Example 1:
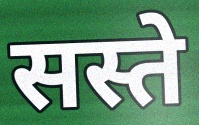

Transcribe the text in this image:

सस्ते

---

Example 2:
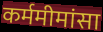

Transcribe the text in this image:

कर्ममीमांसा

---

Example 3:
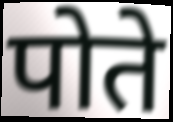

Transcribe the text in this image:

पोते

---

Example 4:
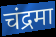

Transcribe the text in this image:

चंद्रमा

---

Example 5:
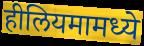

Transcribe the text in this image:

हीलियमामध्ये